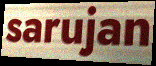
sarujan